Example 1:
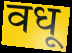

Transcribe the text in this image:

वधू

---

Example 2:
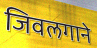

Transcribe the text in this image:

जिवलगाने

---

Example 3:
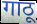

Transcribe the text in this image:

गाठू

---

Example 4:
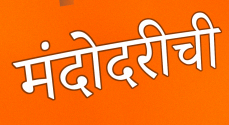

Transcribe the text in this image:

मंदोदरीची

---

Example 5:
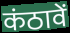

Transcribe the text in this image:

कंठावें